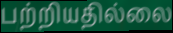
பற்றியதில்லை